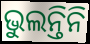
ଭୁଲନ୍ତିନି